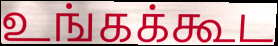
உங்கக்கூட